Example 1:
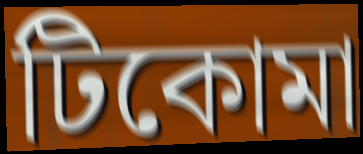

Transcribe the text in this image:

টিকোমা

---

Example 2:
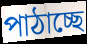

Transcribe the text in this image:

পাঠাচ্ছে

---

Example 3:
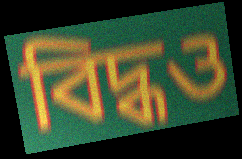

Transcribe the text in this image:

বিদ্ধও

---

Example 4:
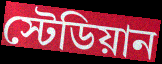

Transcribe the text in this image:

স্টেডিয়ান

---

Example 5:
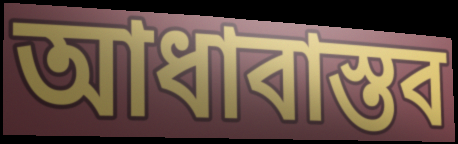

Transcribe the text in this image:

আধাবাস্তব